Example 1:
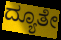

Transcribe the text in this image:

ದ್ಯೂತೇ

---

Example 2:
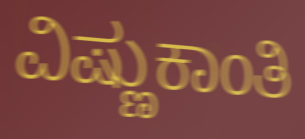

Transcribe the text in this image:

ವಿಷ್ಣುಕಾಂತಿ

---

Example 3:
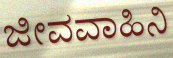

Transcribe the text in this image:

ಜೀವವಾಹಿನಿ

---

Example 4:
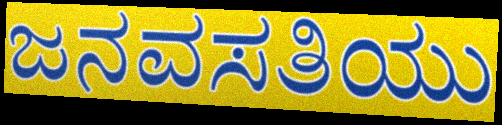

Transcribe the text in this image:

ಜನವಸತಿಯು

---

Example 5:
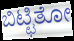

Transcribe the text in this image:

ಬಿಟ್ಟಿತೋ